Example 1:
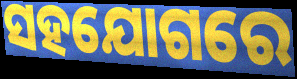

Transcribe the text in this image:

ସହଯୋଗରେ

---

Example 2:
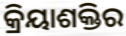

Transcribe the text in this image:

କ୍ରିୟାଶକ୍ତିର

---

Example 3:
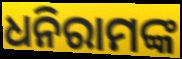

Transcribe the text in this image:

ଧନିରାମଙ୍କ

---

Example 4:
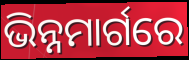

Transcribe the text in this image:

ଭିନ୍ନମାର୍ଗରେ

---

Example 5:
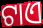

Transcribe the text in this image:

ଟାଏ